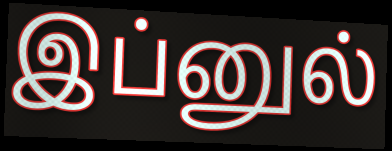
இப்னுல்